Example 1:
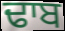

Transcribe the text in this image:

ਢਾਬ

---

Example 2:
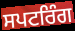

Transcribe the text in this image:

ਸਪਟਰਿੰਗ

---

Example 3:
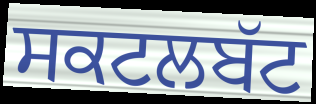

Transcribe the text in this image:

ਸਕਟਲਬੱਟ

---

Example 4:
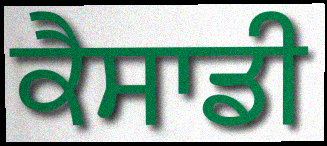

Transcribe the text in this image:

ਕੈਸਾਡੀ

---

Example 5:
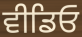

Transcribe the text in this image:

ਵੀਡਿਓ